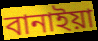
বানাইয়া